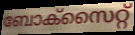
ബോക്സൈറ്റ്